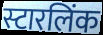
स्‍टारलिंक